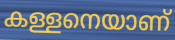
കള്ളനെയാണ്